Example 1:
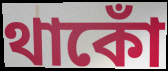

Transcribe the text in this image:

থাকোঁ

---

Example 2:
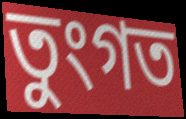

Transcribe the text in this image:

তুংগত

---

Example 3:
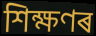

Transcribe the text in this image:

শিক্ষণৰ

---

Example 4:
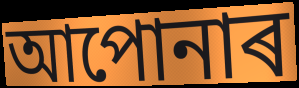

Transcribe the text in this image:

আপোনাৰ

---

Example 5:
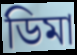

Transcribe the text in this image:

ডিমা